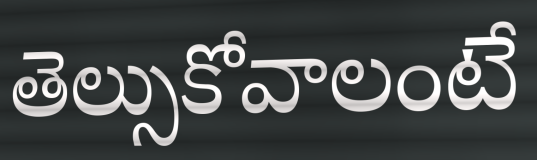
తెల్సుకోవాలంటే